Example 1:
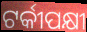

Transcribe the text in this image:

ଟର୍କୀପକ୍ଷୀ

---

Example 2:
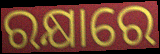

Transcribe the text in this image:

ରକ୍ଷାରେ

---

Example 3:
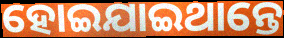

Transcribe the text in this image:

ହୋଇଯାଇଥାନ୍ତେ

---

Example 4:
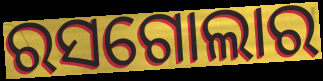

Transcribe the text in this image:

ରସଗୋଲାର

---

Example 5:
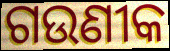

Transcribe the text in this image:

ଗଉଣୀକ